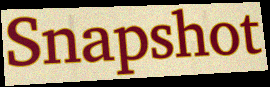
Snapshot